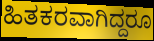
ಹಿತಕರವಾಗಿದ್ದರೂ